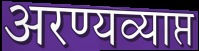
अरण्यव्याप्त